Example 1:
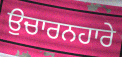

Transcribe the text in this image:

ਉਚਾਰਨਹਾਰੇ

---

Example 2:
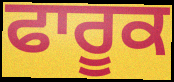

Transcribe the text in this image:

ਫਾਰੂਕ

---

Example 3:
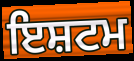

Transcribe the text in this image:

ਇਸ਼ਟਮ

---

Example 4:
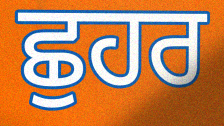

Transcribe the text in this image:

ਛੁਹਰ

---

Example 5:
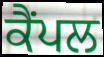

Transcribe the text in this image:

ਕੈਂਪਲ